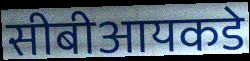
सीबीआयकडे